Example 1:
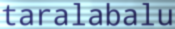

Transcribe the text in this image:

taralabalu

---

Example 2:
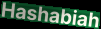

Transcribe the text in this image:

Hashabiah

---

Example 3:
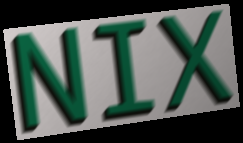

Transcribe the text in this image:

NIX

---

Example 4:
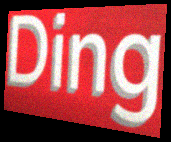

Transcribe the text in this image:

Ding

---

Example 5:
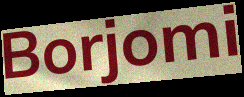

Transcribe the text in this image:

Borjomi